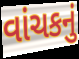
વાંચકનું